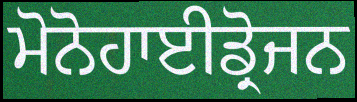
ਮੋਨੋਹਾਈਡ੍ਰੋਜਨ